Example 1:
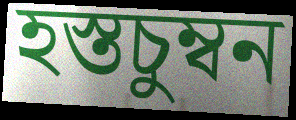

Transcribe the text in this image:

হস্তচুম্বন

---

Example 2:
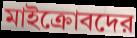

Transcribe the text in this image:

মাইক্রোবদের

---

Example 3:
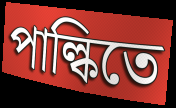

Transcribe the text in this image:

পাল্কিতে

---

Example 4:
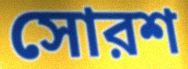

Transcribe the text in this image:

সোরশ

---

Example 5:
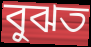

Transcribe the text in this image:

বুঝত